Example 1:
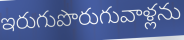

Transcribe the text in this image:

ఇరుగుపొరుగువాళ్లను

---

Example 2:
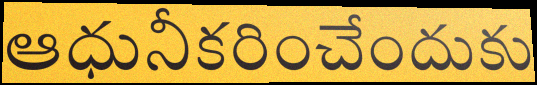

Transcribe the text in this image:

ఆధునీకరించేందుకు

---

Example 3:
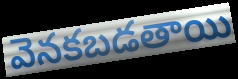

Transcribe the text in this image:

వెనకబడతాయి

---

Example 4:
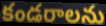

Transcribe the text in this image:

కండరాలను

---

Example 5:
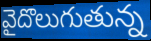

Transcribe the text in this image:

వైదొలుగుతున్న